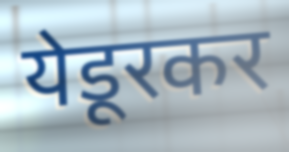
येडूरकर